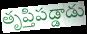
తృప్తిపడ్డాడు